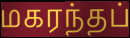
மகரந்தப்